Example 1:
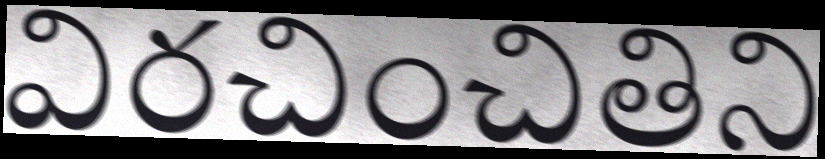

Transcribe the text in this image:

విరచించితిని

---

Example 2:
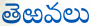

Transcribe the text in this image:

తెఱవలు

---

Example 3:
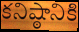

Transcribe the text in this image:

కనిష్ఠానికి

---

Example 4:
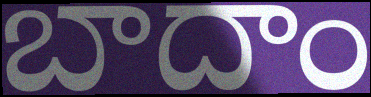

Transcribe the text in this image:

బాదాం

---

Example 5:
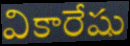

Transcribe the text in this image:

వికారేషు